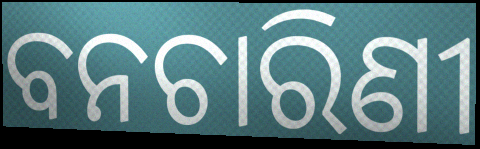
ବନଚାରିଣୀ